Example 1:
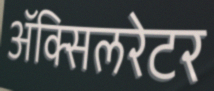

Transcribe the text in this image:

ॲक्सिलरेटर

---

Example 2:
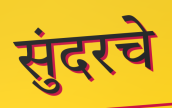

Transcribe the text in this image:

सुंदरचे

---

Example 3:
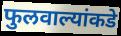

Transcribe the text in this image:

फुलवाल्यांकडे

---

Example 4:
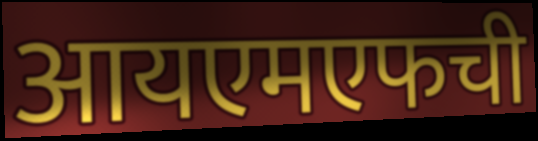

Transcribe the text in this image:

आयएमएफची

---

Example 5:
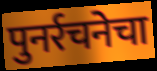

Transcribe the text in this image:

पुनर्रचनेचा